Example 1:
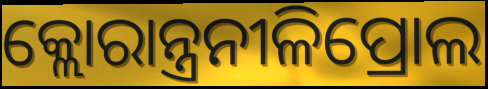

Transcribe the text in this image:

କ୍ଲୋରାନ୍ତ୍ରନୀଳିପ୍ରୋଲ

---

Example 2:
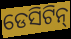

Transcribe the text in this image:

ଡେସିଟିନ୍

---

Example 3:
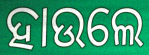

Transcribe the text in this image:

ହାଉଲେ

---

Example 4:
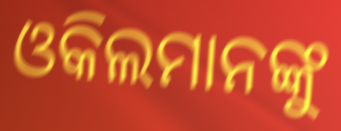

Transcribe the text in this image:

ଓକିଲମାନଙ୍କୁ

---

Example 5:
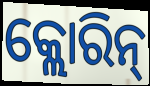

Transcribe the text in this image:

କ୍ଲୋରିନ୍